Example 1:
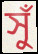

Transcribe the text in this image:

সুঁ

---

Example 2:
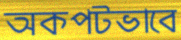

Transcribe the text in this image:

অকপটভাবে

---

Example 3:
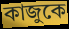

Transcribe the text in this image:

কাজুকে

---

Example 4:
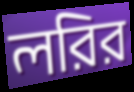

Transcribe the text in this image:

লরির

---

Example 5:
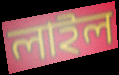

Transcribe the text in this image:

লাইল